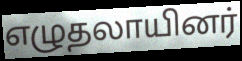
எழுதலாயினர்